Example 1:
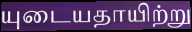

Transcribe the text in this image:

யுடையதாயிற்று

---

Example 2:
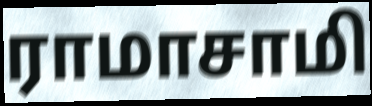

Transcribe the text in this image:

ராமாசாமி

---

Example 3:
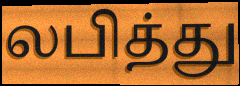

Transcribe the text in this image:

லபித்து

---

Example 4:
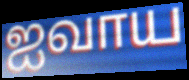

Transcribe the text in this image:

ஐவாய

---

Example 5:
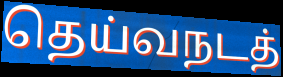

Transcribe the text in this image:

தெய்வநடத்